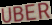
UBER